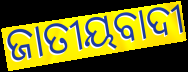
ଜାତୀୟବାଦୀ